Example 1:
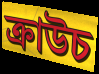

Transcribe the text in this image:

ক্রাউচ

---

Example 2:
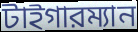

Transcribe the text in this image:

টাইগারম্যান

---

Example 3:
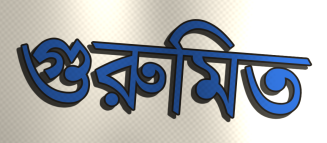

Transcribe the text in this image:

গুরুমিত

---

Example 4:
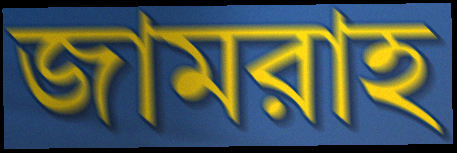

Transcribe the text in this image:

জামরাহ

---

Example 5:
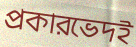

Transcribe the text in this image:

প্রকারভেদই